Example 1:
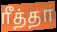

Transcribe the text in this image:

ரீத்தா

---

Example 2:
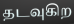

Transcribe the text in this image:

தடவுகிற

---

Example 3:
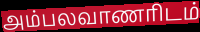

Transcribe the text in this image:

அம்பலவாணரிடம்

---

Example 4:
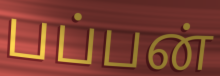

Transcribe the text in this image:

பப்பன்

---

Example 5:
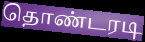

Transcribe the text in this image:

தொண்டரடி